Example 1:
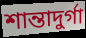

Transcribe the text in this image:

শান্তাদুর্গা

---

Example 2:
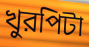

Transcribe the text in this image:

খুরপিটা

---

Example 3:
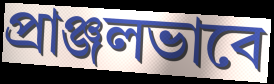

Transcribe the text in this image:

প্রাঞ্জলভাবে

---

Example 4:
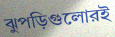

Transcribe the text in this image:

ঝুপড়িগুলোরই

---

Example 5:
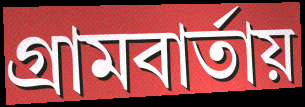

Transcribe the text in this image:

গ্রামবার্তায়